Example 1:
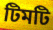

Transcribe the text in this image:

টিমটি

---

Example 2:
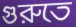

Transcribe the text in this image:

গুরুতে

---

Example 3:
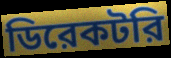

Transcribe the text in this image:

ডিরেকটরি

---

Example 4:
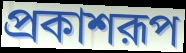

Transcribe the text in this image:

প্রকাশরূপ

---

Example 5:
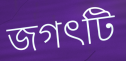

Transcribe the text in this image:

জগৎটি